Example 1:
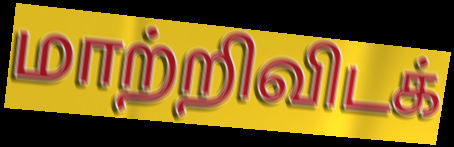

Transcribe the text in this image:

மாற்றிவிடக்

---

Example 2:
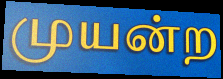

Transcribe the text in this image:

முயன்ற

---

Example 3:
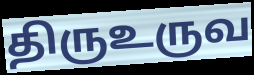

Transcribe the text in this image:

திருஉருவ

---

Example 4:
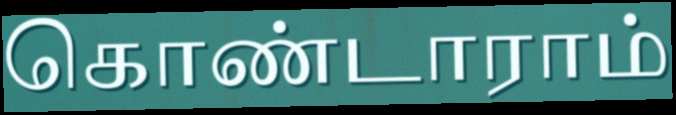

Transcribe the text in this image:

கொண்டாராம்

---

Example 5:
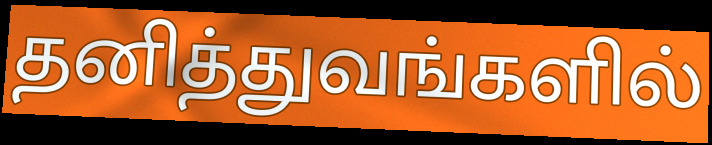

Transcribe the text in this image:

தனித்துவங்களில்